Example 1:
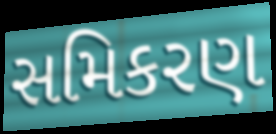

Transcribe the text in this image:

સમિકરણ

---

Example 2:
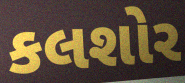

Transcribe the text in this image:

કલશોર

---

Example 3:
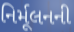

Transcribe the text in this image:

નિર્મૂલનની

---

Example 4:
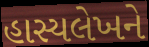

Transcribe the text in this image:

હાસ્યલેખને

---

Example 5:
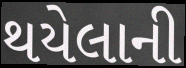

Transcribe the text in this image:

થયેલાની